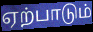
ஏற்பாடும்